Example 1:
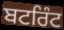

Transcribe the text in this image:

ਬਟਰਿੰਟ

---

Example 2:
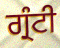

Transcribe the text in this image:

ਗ੍ਰੰਟੀ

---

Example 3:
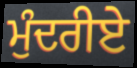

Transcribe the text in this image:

ਮੁੰਦਰੀਏ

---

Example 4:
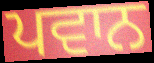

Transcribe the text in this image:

ਪਵਾਨ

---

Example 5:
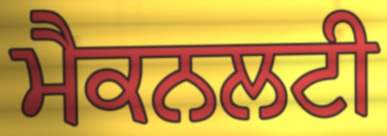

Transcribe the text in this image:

ਮੈਕਨਲਟੀ